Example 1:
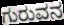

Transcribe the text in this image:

ಗುರುವನ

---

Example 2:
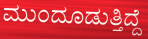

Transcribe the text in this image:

ಮುಂದೂಡುತ್ತಿದ್ದೆ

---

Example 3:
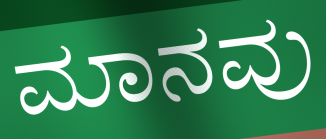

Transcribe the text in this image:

ಮಾನವು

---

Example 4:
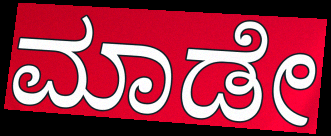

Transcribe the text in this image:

ಮಾಡೇ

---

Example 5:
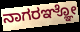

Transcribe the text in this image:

ನಾಗರಞ್ಞೋ